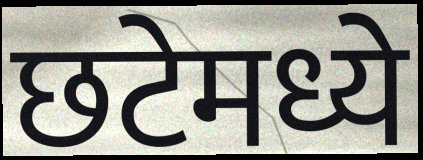
छटेमध्ये